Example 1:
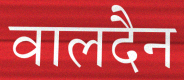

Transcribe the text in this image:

वालदैन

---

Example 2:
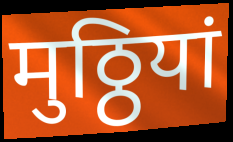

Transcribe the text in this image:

मुठ्ठियां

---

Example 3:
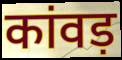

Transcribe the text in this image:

कांवड़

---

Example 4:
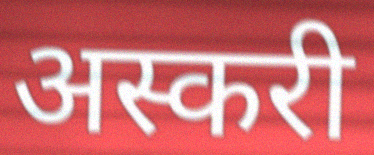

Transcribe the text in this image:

अस्करी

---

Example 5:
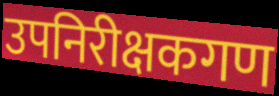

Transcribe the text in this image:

उपनिरीक्षकगण